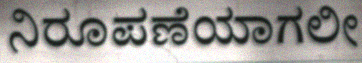
ನಿರೂಪಣೆಯಾಗಲೀ